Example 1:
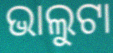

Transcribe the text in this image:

ଭାଲୁଟା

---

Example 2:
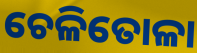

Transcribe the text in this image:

ଚେଳିତୋଳା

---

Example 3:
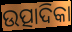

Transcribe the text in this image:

ଉତ୍ପାଦିକା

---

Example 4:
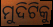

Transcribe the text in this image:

ମୁଦିଟିକୁ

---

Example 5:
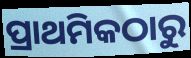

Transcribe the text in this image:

ପ୍ରାଥମିକଠାରୁ